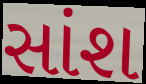
સાંશ